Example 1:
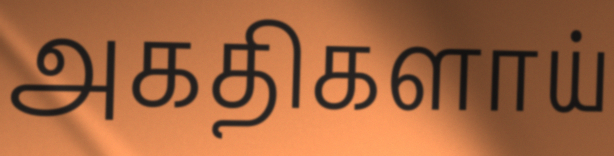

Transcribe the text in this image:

அகதிகளாய்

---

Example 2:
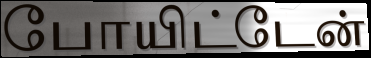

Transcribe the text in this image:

போயிட்டேன்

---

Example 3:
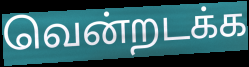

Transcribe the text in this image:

வென்றடக்க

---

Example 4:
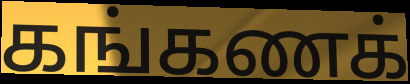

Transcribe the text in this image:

கங்கணக்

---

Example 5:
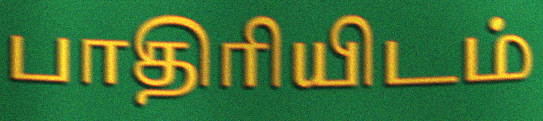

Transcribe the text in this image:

பாதிரியிடம்